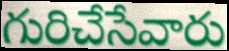
గురిచేసేవారు